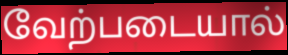
வேற்படையால்